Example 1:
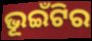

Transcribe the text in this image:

ଭୂଇଁଟିର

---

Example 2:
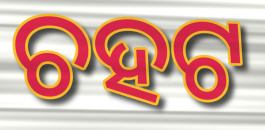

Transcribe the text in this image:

ଚହଟ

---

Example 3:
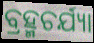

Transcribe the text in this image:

ବ୍ରହ୍ମଚର୍ଯ୍ୟା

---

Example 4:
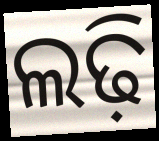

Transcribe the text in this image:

ଲଢ଼ି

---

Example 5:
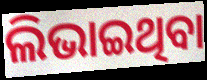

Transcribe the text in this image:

ଲିଭାଇଥିବା